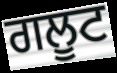
ਗਲੂਟ